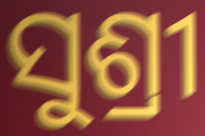
ସୁଶ୍ରୀ